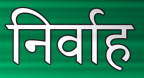
निर्वाह